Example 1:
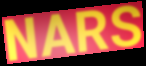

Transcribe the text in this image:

NARS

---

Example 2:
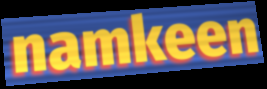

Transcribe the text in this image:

namkeen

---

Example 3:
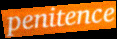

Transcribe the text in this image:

penitence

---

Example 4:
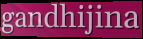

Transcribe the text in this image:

gandhijina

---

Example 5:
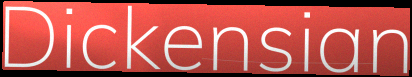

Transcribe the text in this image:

Dickensian